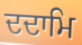
ਦਦਾਮਿ